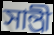
সান্ত্রী